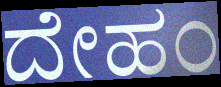
ದೇಹಂ